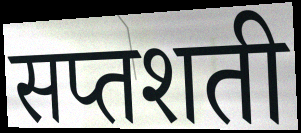
सप्तशती